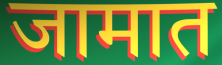
जामात